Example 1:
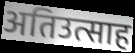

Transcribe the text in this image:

अतिउत्साह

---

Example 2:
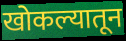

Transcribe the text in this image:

खोकल्यातून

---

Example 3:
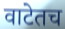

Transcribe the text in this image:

वाटेतच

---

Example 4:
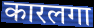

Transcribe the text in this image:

कारलगा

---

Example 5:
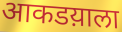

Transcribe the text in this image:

आकडय़ाला